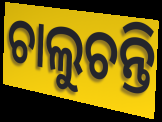
ଚାଲୁଚନ୍ତି